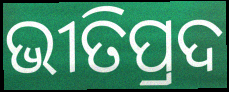
ଭୀତିପ୍ରଦ